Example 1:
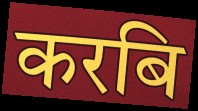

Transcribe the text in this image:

करबि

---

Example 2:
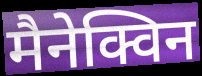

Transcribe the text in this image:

मैनेक्विन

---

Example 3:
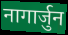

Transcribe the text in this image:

नागार्जुन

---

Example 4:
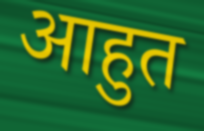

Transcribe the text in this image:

आहुत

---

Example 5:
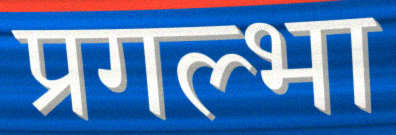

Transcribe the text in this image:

प्रगल्भा